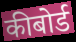
कीबोर्ड